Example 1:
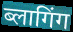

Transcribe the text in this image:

ब्लागिंग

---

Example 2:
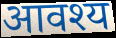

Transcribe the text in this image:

आवश्य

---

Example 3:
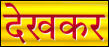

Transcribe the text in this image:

देखकर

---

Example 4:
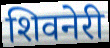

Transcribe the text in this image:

शिवनेरी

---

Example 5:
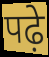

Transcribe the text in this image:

पढ़े